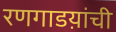
रणगाडय़ांची